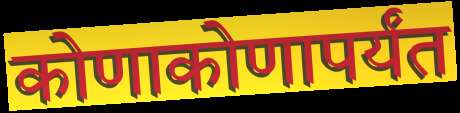
कोणाकोणापर्यंत